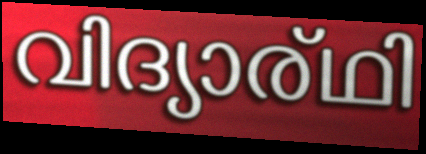
വിദ്യാര്ഥി